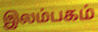
இலம்பகம்